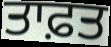
ਤਾਫ਼ਤ